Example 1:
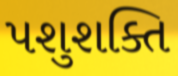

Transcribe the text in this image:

પશુશક્તિ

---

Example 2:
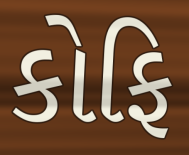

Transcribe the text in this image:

કોફિ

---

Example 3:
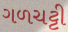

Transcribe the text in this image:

ગળચટ્ટી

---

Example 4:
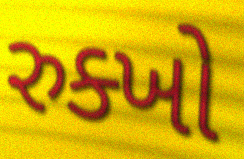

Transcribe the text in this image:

રુક્ખો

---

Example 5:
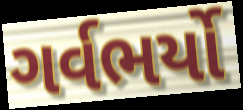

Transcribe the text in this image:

ગર્વભર્યો